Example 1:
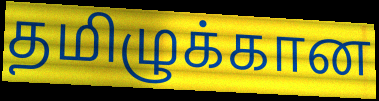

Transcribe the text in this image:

தமிழுக்கான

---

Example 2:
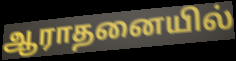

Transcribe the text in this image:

ஆராதனையில்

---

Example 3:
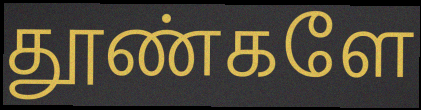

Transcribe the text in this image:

தூண்களே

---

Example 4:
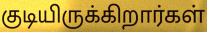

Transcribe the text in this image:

குடியிருக்கிறார்கள்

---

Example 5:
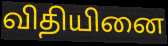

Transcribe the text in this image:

விதியினை